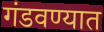
गंडवण्यात